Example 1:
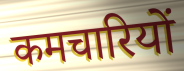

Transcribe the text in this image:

कमचारियों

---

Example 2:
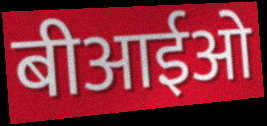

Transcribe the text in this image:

बीआईओ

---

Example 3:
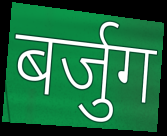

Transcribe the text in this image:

बर्जुग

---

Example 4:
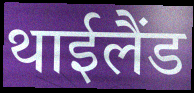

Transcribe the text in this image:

थाईलैंड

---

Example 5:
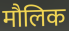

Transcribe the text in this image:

मौलिक